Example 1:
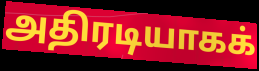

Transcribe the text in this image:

அதிரடியாகக்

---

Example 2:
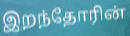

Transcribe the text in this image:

இறந்தோரின்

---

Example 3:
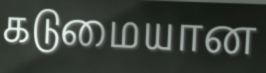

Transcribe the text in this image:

கடுமையான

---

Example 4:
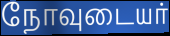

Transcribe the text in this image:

நோவுடையர்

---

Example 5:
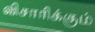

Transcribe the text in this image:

விசாரிக்கும்